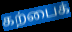
கற்பைக்